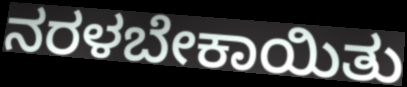
ನರಳಬೇಕಾಯಿತು